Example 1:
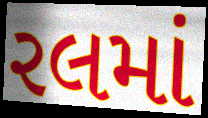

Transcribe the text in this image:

રલમાં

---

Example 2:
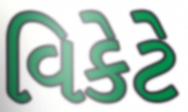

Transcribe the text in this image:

વિકેટે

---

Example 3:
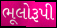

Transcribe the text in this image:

ભૂલોરૂપી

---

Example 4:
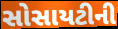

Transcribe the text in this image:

સોસાયટીની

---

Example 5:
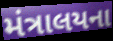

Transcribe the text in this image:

મંત્રાલયના